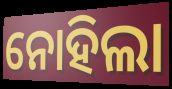
ନୋହିଲା